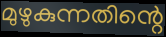
മുഴുകുന്നതിന്റെ